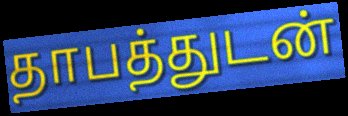
தாபத்துடன்